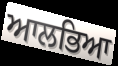
ਆਲਭਿਆ